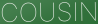
COUSIN